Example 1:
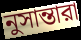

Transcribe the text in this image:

নুসান্তারা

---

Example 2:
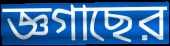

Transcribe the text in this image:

জ্ঞগাছের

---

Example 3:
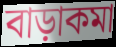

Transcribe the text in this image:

বাড়াকমা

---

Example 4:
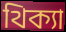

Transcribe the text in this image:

থিক্যা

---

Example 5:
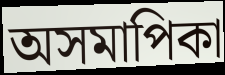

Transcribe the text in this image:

অসমাপিকা